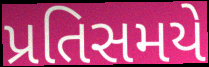
પ્રતિસમયે